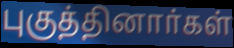
புகுத்தினார்கள்